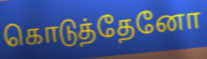
கொடுத்தேனோ